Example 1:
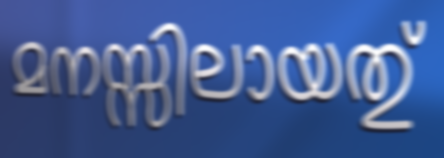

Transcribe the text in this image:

മനസ്സിലായതു്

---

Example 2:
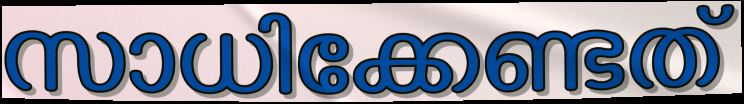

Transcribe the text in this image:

സാധിക്കേണ്ടത്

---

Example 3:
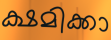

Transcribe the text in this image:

ക്ഷമിക്കാ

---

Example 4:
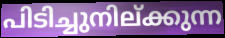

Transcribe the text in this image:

പിടിച്ചുനില്ക്കുന്ന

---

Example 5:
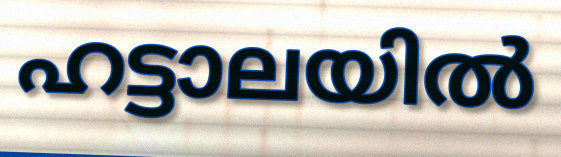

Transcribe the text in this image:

ഹട്ടാലയിൽ